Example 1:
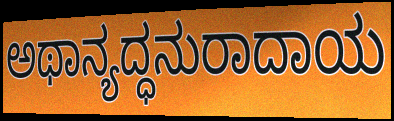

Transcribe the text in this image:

ಅಥಾನ್ಯದ್ಧನುರಾದಾಯ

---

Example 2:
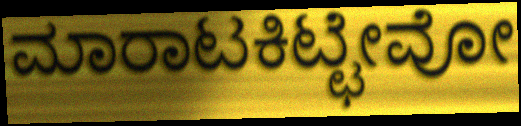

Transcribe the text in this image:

ಮಾರಾಟಕಿಟ್ಟೇವೋ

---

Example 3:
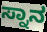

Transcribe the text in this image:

ಸ್ನಾನ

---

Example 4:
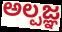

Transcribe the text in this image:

ಅಲ್ಪಜ್ಞ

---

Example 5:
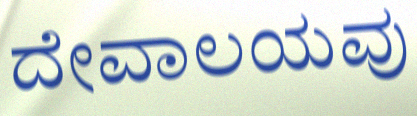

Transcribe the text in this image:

ದೇವಾಲಯವು